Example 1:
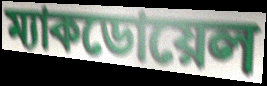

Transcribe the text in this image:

ম্যাকডোয়েল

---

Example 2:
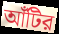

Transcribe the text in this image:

আঁটির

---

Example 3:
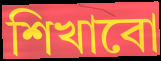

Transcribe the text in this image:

শিখাবো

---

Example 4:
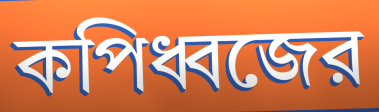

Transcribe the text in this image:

কপিধ্বজের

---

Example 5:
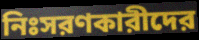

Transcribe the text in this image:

নিঃসরণকারীদের